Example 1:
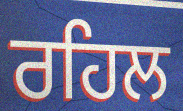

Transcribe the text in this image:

ਰਹਿਲ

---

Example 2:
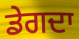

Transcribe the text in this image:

ਡੇਗਦਾ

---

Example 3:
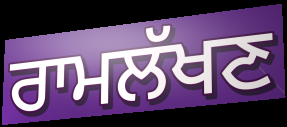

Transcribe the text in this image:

ਰਾਮਲੱਖਣ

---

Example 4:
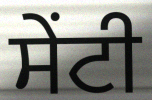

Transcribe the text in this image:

ਸੇਂਟੀ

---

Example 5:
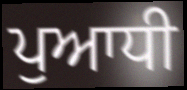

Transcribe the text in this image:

ਪੁਆਧੀ